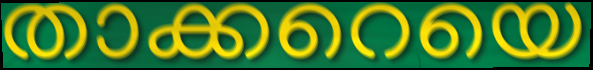
താക്കറെയെ